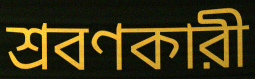
শ্রবণকারী